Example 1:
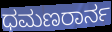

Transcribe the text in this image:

ಧಮಣರಾರ್ನ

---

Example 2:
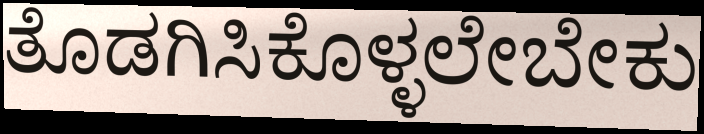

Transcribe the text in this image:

ತೊಡಗಿಸಿಕೊಳ್ಳಲೇಬೇಕು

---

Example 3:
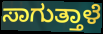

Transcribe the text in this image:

ಸಾಗುತ್ತಾಳೆ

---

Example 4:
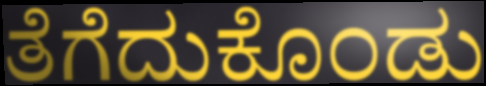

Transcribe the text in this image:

ತೆಗೆದುಕೊಂಡು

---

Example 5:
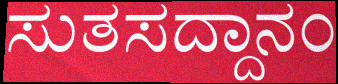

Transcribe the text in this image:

ಸುತಸದ್ದಾನಂ